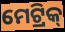
ମେଟ୍ରିକ୍